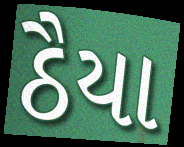
ઠૈયા